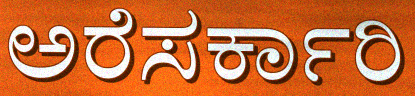
ಅರೆಸರ್ಕಾರಿ